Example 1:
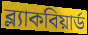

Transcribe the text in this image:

ব্ল্যাকবিয়ার্ড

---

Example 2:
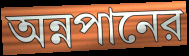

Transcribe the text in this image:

অন্নপানের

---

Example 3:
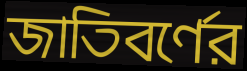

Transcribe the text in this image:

জাতিবর্ণের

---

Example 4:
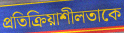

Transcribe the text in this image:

প্রতিক্রিয়াশীলতাকে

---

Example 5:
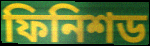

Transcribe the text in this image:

ফিনিশড